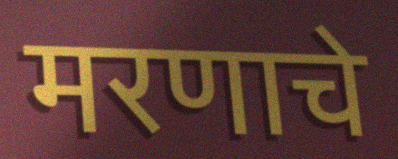
मरणाचे